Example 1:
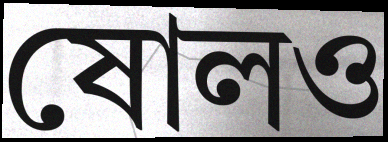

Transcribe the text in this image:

ষোলও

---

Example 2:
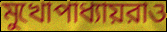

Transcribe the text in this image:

মুখোপাধ্যায়রাও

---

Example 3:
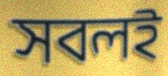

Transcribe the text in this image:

সবলই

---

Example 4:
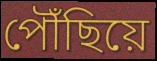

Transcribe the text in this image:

পৌঁছিয়ে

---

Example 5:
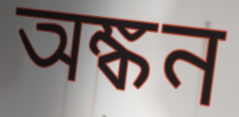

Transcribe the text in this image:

অঙ্কন